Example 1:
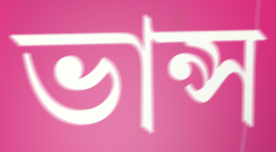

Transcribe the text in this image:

ভান্স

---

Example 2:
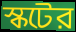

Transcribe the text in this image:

স্কটের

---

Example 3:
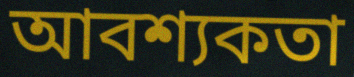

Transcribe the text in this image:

আবশ্যকতা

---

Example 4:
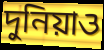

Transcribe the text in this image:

দুনিয়াও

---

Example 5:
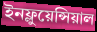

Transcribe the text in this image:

ইনফ্লুয়েন্সিয়াল